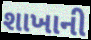
શાખાની